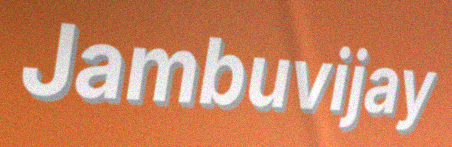
Jambuvijay